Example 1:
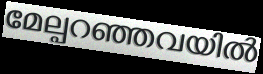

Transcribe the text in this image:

മേല്പറഞ്ഞവയിൽ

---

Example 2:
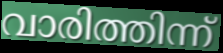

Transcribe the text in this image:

വാരിത്തിന്ന്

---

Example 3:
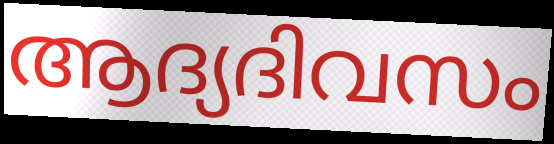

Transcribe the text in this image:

ആദ്യദിവസം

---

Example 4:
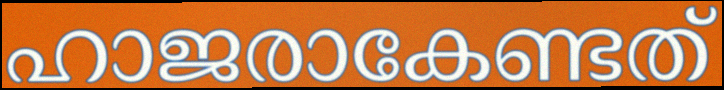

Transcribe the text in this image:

ഹാജരാകേണ്ടത്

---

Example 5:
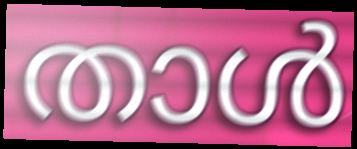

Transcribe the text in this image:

താൾ